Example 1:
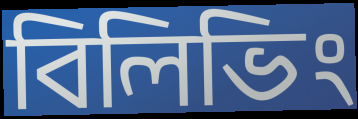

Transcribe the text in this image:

বিলিভিং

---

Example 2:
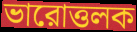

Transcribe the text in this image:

ভারোত্তলক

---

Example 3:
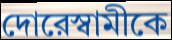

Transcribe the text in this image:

দোরেস্বামীকে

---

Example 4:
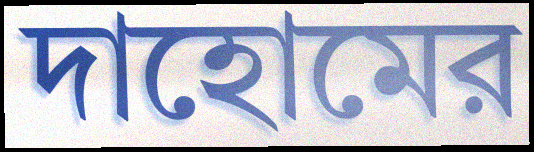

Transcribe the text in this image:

দাহোমের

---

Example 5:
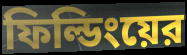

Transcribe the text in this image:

ফিল্ডিংয়ের